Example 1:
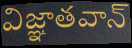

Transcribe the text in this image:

విజ్ఞాతవాన్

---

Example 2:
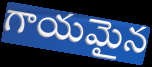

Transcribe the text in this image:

గాయమైన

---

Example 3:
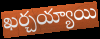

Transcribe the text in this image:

ఖర్చయ్యాయి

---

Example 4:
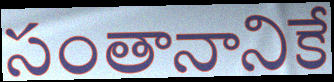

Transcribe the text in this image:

సంతానానికే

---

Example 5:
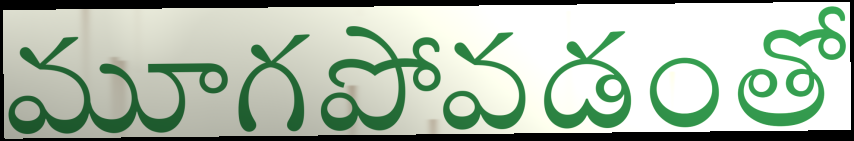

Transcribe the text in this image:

మూగపోవడంతో